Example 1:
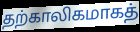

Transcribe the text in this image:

தற்காலிகமாகத்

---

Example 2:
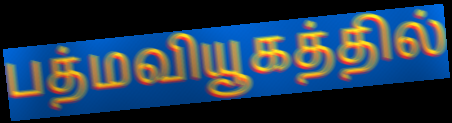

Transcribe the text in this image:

பத்மவியூகத்தில்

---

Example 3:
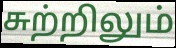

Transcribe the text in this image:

சுற்றிலும்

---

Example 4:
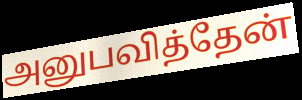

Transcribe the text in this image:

அனுபவித்தேன்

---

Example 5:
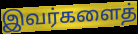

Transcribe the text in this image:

இவர்களைத்